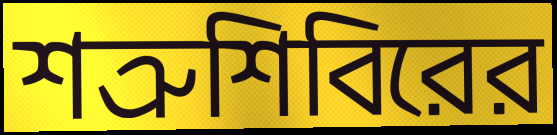
শত্রুশিবিরের